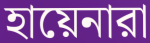
হায়েনারা